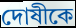
দোষীকে